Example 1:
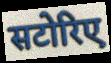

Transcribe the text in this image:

सटोरिए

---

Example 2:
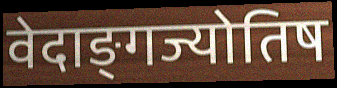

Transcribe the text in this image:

वेदाङ्गज्योतिष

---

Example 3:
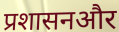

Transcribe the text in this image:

प्रशासनऔर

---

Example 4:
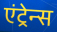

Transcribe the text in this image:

एंट्रेन्स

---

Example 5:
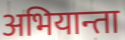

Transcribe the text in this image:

अभियान्ता